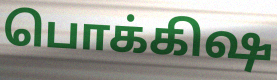
பொக்கிஷ